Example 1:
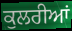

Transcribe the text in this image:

ਕੁਲਰੀਆਂ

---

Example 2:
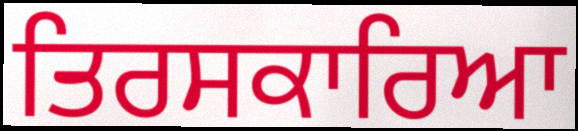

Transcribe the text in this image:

ਤਿਰਸਕਾਰਿਆ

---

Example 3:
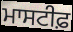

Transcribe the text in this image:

ਮਾਸਟੀਫ਼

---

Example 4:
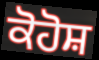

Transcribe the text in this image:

ਕੋਹੋਸ਼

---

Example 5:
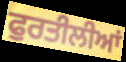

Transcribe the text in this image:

ਫੁਰਤੀਲੀਆਂ